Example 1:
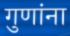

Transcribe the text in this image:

गुणांना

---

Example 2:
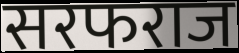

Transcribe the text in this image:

सरफराज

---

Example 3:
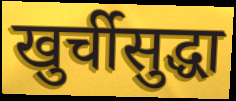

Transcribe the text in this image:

खुर्चीसुद्धा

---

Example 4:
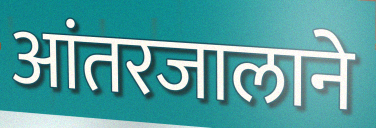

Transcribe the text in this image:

आंतरजालाने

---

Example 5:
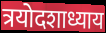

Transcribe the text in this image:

त्रयोदशाध्याय